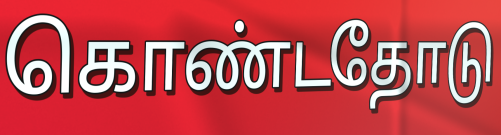
கொண்டதோடு